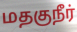
மதகுநீர்